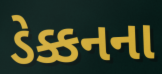
ડેક્કનના